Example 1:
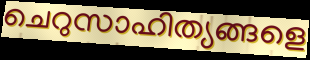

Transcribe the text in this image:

ചെറുസാഹിത്യങ്ങളെ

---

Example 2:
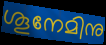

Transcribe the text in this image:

ശൂനേമിനു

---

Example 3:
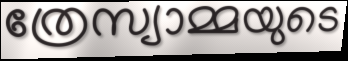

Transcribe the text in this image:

ത്രേസ്യാമ്മയുടെ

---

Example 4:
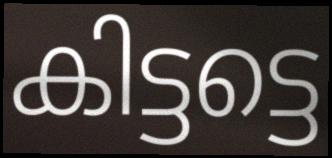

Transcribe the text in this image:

കിട്ടട്ടെ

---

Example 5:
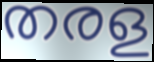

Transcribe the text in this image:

തരള